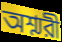
অশ্মরী